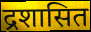
द्रशासित